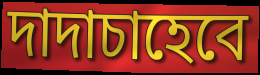
দাদাচাহেবে